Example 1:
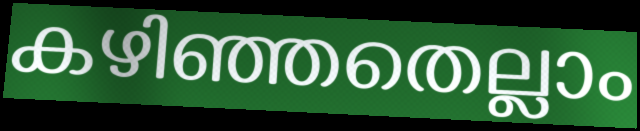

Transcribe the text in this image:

കഴിഞ്ഞതെല്ലാം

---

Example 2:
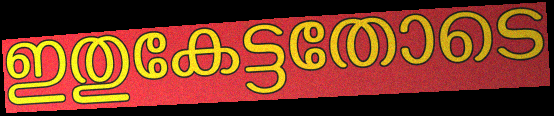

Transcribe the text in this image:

ഇതുകേട്ടതോടെ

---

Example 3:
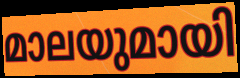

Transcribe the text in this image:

മാലയുമായി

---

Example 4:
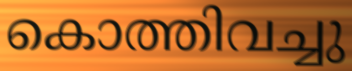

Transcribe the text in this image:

കൊത്തിവച്ചു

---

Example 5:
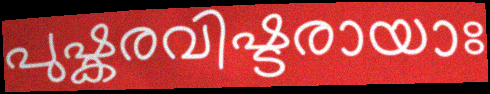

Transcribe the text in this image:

പുഷ്കരവിഷ്ടരായാഃ